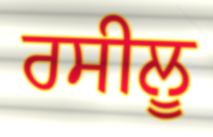
ਰਸੀਲੂ